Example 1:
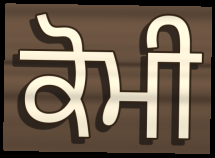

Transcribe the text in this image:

ਕੋਮੀ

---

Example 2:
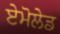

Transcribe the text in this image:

ਏਮੋਲੇਡ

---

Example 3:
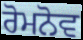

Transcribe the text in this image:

ਰੋਮਨੋਵ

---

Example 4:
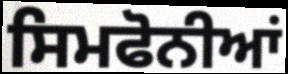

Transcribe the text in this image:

ਸਿਮਫੋਨੀਆਂ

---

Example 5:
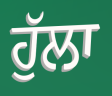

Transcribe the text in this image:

ਹੁੱਲਾ